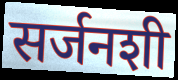
सर्जनशी